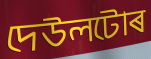
দেউলটোৰ